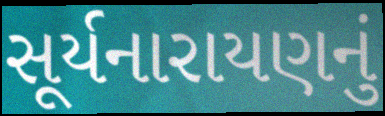
સૂર્યનારાયણનું